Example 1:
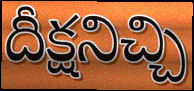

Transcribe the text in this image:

దీక్షనిచ్చి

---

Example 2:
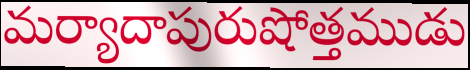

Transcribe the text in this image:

మర్యాదాపురుషోత్తముడు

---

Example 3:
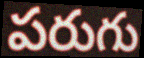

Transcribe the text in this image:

పరుగు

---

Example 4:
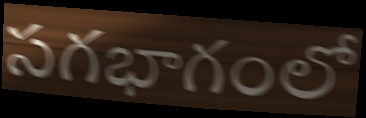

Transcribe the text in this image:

సగభాగంలో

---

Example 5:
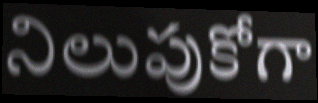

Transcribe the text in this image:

నిలుపుకోగా